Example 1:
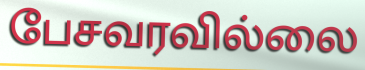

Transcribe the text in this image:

பேசவரவில்லை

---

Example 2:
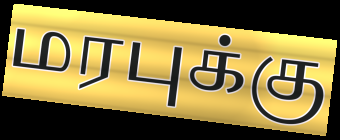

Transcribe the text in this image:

மரபுக்கு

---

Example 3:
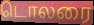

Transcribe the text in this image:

டொலரை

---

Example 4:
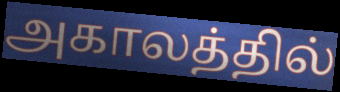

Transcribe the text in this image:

அகாலத்தில்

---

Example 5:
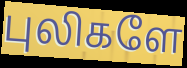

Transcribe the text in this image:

புலிகளே